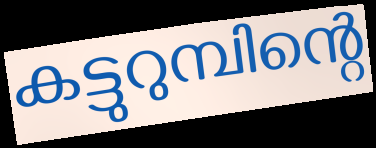
കട്ടുറുമ്പിന്റെ